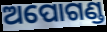
ଅପୋଗଣ୍ଡ